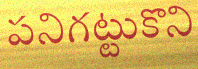
పనిగట్టుకొని